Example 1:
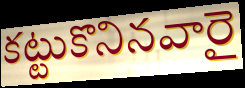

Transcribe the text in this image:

కట్టుకొనినవారై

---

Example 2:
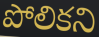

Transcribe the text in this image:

పోలికని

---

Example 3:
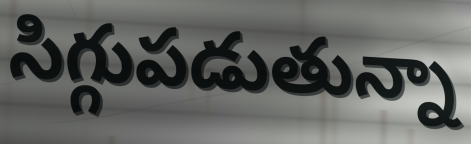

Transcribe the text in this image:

సిగ్గుపడుతున్నా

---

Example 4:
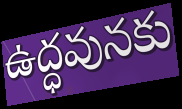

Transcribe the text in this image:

ఉద్ధవునకు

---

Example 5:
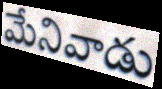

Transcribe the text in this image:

మేనివాడు